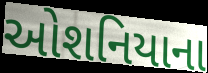
ઓશનિયાના